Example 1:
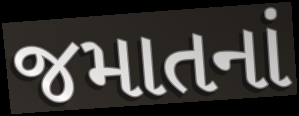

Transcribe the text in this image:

જમાતનાં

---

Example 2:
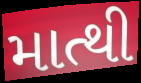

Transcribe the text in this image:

માત્થી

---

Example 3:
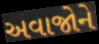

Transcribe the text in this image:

અવાજોને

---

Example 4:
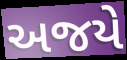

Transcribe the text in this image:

અજયે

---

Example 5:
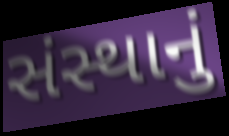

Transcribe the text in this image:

સંસ્થાનું